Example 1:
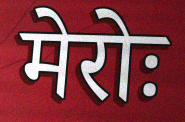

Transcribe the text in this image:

मेरोः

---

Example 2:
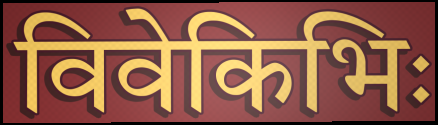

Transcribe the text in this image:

विवेकिभिः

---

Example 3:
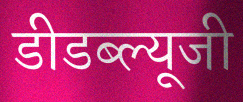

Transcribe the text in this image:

डीडब्ल्यूजी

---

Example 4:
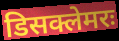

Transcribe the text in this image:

डिसक्लेमरः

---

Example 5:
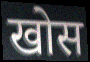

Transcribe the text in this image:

खोस